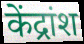
केंद्रांश